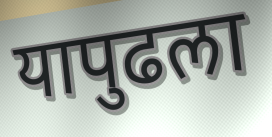
यापुढला